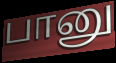
பானு